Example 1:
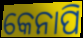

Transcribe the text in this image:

କେନାପି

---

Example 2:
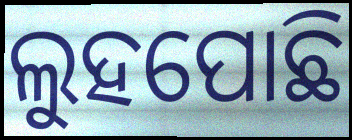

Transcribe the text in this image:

ଲୁହପୋଛି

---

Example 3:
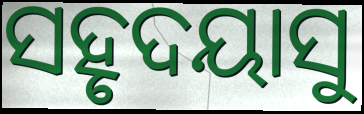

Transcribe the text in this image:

ସହୃଦୟାସୁ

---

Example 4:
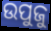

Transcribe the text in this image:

ଉପୁଜୁ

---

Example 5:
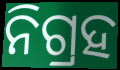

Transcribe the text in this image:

ନିଗ୍ରହ